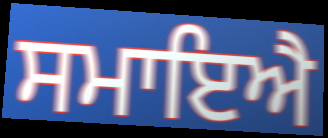
ਸਮਾਇਐ